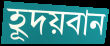
হূদয়বান